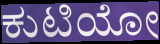
ಕುಟಿಯೋ